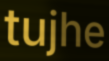
tujhe